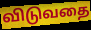
விடுவதை